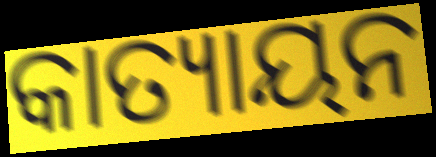
କାତ୍ୟାୟନ